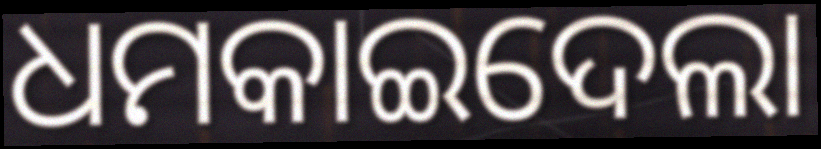
ଧମକାଇଦେଲା